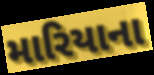
મારિયાના